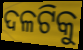
ଦଳଟିକୁ